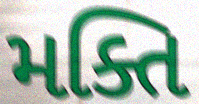
મક્તિ